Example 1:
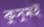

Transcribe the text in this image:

কুসুমই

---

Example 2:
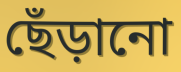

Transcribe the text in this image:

ছেঁড়ানো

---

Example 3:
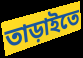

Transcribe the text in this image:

তাড়াইতে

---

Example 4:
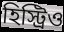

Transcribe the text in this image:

হিস্ট্রিও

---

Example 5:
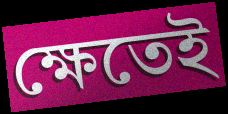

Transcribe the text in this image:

ক্ষেতেই